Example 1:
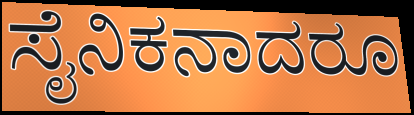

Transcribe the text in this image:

ಸೈನಿಕನಾದರೂ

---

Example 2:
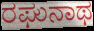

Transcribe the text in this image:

ರಘುನಾಥ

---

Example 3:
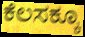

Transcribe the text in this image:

ಕೆಲಸಕ್ಕೂ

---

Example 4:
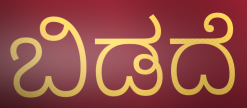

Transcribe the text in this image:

ಬಿಡದೆ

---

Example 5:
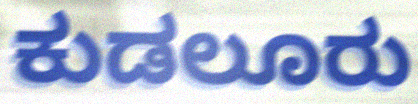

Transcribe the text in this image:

ಕುಡಲೂರು